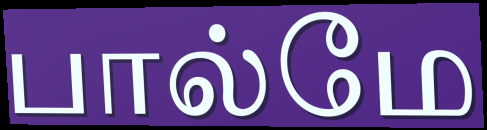
பால்மே